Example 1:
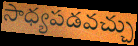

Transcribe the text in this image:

సాధ్యపడవచ్చు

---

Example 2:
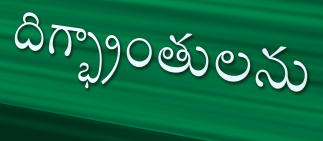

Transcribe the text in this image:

దిగ్భ్రాంతులను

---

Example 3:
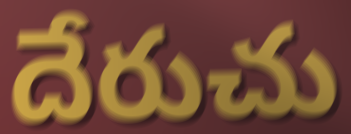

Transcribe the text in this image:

దేరుచు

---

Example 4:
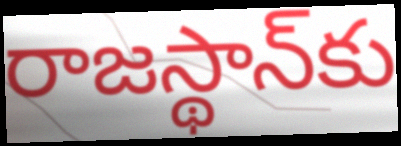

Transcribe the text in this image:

రాజస్థాన్‌కు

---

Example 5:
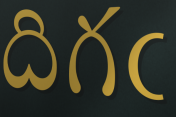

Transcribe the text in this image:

దిగఁ